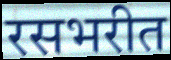
रसभरीत